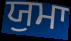
ਯੁਮਾ